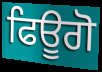
ਫਿਊਗੋ